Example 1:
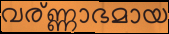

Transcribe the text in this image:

വര്ണ്ണാഭമായ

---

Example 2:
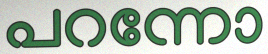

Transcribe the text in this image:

പറന്നോ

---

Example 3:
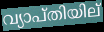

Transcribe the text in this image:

വ്യാപ്തിയില്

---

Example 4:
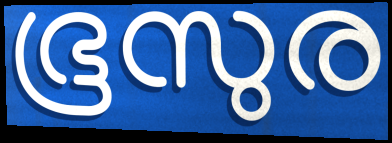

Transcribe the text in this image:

ഭൂസുര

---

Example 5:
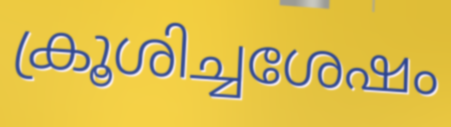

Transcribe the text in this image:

ക്രൂശിച്ചശേഷം